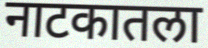
नाटकातला